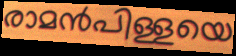
രാമൻപിള്ളയെ